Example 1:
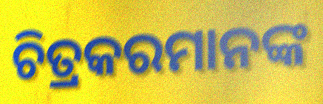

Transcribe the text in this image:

ଚିତ୍ରକରମାନଙ୍କ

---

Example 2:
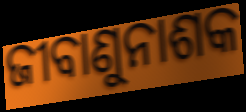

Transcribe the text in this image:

ଜୀବାଣୁନାଶକ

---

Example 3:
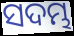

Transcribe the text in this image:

ସଦମ୍ଭ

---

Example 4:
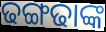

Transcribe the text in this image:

ଢଙ୍ଗଢାଙ୍କ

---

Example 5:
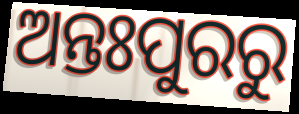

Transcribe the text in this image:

ଅନ୍ତଃପୁରରୁ